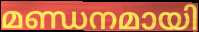
മണ്ഡനമായി